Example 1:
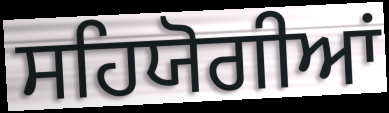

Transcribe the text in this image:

ਸਹਿਯੋਗੀਆਂ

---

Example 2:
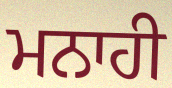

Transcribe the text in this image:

ਮਨਾਹੀ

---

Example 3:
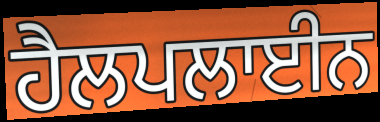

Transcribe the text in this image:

ਹੈਲਪਲਾਈਨ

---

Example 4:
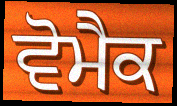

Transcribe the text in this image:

ਵੋਮੈਕ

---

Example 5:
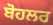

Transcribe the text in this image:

ਬੋਹਲਰ